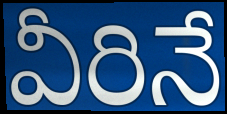
వీరినే